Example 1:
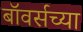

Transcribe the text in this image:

बॉवर्सच्या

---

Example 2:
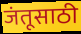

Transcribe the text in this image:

जंतूसाठी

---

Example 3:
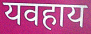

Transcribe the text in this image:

यवहाय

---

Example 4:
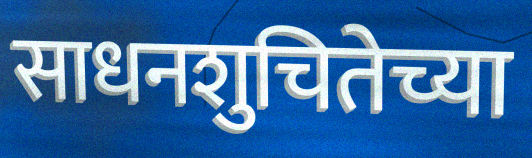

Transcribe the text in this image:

साधनशुचितेच्या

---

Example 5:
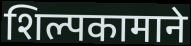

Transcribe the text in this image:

शिल्पकामाने